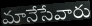
మానేసేవారు